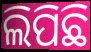
ଲିପିଛି